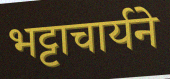
भट्टाचार्यने